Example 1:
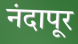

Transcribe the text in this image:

नंदापूर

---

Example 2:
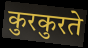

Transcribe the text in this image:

कुरकुरते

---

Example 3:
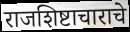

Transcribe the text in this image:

राजशिष्टाचाराचे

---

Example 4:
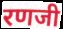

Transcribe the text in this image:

रणजी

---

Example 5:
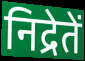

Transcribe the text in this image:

निद्रेतें